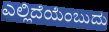
ಎಲ್ಲಿದೆಯೆಂಬುದು